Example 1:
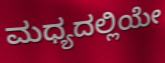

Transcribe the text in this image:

ಮಧ್ಯದಲ್ಲಿಯೇ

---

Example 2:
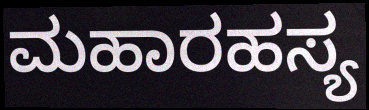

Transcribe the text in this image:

ಮಹಾರಹಸ್ಯ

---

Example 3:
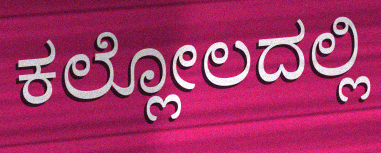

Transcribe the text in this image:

ಕಲ್ಲೋಲದಲ್ಲಿ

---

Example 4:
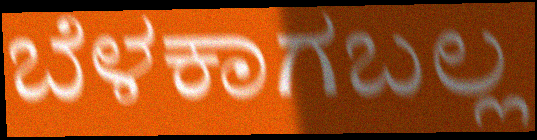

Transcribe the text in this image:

ಬೆಳಕಾಗಬಲ್ಲ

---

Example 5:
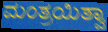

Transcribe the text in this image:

ಮಂತ್ರಯಿತ್ವಾ